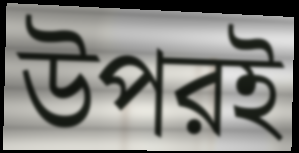
উপরই